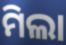
ମିଲା